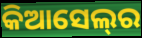
କିଆସେଲ୍‌ର